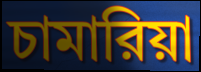
চামারিয়া